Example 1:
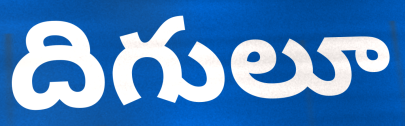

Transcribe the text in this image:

దిగులూ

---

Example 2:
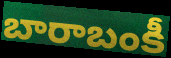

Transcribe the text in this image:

బారాబంకీ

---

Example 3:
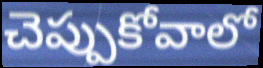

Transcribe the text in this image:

చెప్పుకోవాలో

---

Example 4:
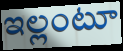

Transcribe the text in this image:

ఇల్లంటూ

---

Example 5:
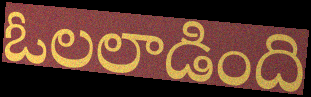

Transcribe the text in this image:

ఓలలాడింది